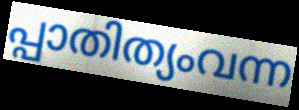
പ്പാതിത്യംവന്ന